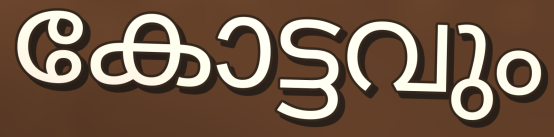
കോട്ടവും